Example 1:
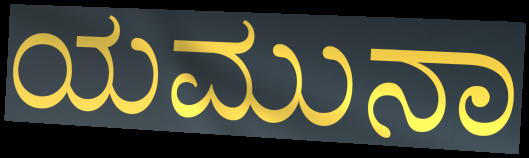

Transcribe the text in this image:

ಯಮುನಾ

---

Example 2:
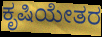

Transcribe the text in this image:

ಕೃಷಿಯೇತರ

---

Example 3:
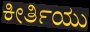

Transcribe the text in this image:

ಕೀರ್ತಿಯು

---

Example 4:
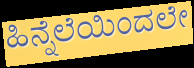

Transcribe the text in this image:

ಹಿನ್ನೆಲೆಯಿಂದಲೇ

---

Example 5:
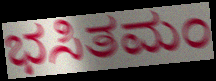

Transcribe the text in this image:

ಭಸಿತಮಂ